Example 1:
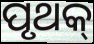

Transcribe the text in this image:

ପୃଥକ୍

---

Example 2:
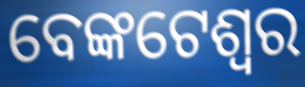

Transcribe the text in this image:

ବେଙ୍କଟେଶ୍ୱର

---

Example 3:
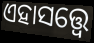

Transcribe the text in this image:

ଏହାସତ୍ତ୍ବେ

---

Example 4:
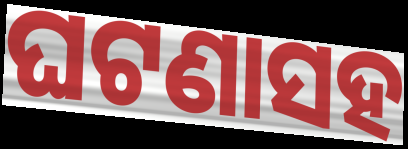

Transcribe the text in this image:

ଘଟଣାସହ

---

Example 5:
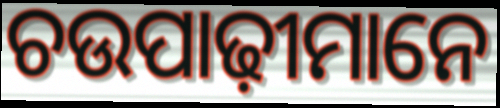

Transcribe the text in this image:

ଚଉପାଢ଼ୀମାନେ